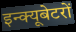
इन्क्यूबेटरों